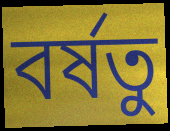
বর্ষতু